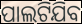
ପାଲଟିଯିବ